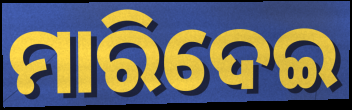
ମାରିଦେଇ